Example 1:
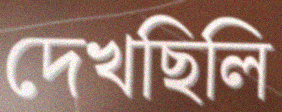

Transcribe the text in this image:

দেখছিলি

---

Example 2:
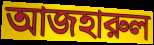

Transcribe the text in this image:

আজহারুল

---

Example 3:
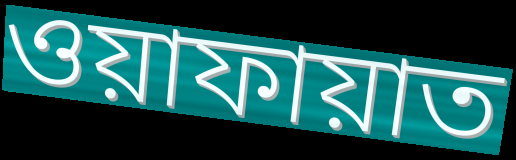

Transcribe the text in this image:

ওয়াফায়াত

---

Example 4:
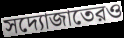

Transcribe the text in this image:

সদ্যোজাতেরও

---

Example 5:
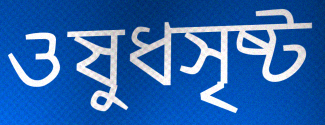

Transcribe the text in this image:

ওষুধসৃষ্ট